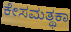
ಕೇಸಮತ್ಥಕಾ